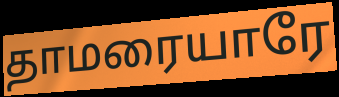
தாமரையாரே